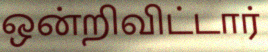
ஒன்றிவிட்டார்